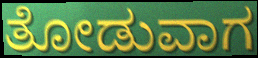
ತೋಡುವಾಗ